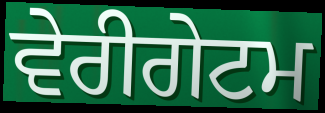
ਵੇਰੀਗੇਟਮ